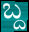
ಬ್ದ